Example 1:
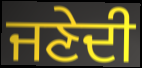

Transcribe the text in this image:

ਜਣੇਦੀ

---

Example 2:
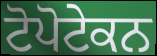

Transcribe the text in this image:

ਟੋਪੋਟੇਕਨ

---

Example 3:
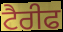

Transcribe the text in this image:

ਟੈਰੀਫ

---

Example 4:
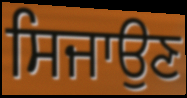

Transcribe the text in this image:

ਸਿਜਾਉਣ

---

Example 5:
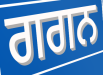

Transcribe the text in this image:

ਗਗਨ